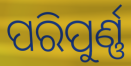
ପରିପୁର୍ଣ୍ଣ